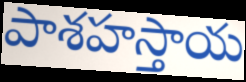
పాశహస్తాయ